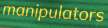
manipulators